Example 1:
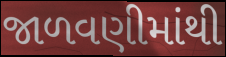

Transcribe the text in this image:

જાળવણીમાંથી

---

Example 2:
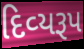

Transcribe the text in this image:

દિવ્‍યરૂપ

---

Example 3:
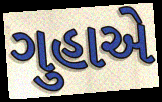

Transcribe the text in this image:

ગુહાએ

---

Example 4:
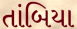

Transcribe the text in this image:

તાંબિયા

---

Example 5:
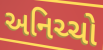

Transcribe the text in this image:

અનિચ્ચો